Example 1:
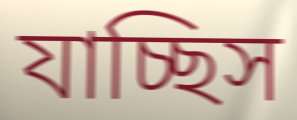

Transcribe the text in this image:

যাচ্ছিস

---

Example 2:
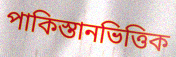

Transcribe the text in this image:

পাকিস্তানভিত্তিক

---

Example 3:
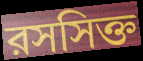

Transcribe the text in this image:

রসসিক্ত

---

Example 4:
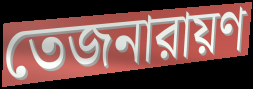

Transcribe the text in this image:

তেজনারায়ণ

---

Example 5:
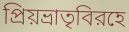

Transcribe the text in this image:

প্রিয়ভ্রাতৃবিরহে